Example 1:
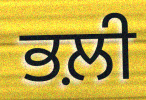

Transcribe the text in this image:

ਭਲ਼ੀ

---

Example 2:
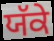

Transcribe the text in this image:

ਯੱਕੇ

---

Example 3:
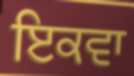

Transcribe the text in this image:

ਇਕਵਾ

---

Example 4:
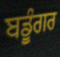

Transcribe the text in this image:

ਬਡੂੰਗਰ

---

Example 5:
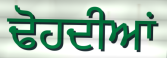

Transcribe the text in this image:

ਢੋਹਦੀਆਂ